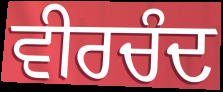
ਵੀਰਚੰਦ